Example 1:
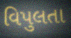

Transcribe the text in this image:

વિપુલતા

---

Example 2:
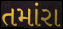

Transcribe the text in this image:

તમાંરા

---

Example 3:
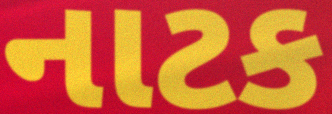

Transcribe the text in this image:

નાટક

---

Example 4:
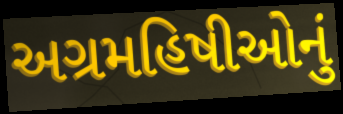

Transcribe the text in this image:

અગ્રમહિષીઓનું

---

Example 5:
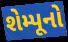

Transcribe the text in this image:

શેમ્પૂનો